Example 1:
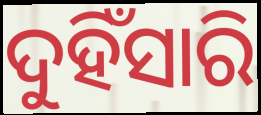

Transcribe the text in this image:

ଦୁହିଁସାରି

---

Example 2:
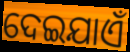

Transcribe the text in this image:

ଦେଇଯାଏଁ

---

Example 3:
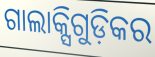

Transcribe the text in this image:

ଗାଲାକ୍ସିଗୁଡ଼ିକର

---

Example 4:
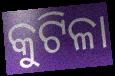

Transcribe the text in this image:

କୁଟିଳା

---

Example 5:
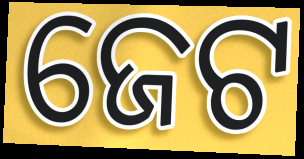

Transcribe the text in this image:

ଜେଟ